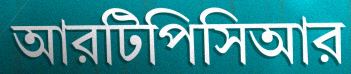
আরটিপিসিআর